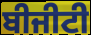
ਬੀਜੀਟੀ